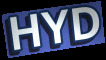
HYD